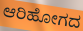
ಆರಿಹೋಗದ